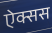
ऐक्सस